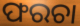
ଫରଚା